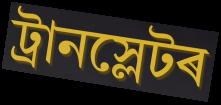
ট্ৰানস্লেটৰ